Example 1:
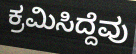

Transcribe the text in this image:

ಕ್ರಮಿಸಿದ್ದೆವು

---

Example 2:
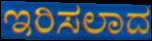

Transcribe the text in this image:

ಇರಿಸಲಾದ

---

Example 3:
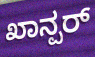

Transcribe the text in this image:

ಖಾನ್ಪರ್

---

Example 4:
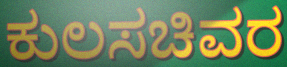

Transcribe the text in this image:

ಕುಲಸಚಿವರ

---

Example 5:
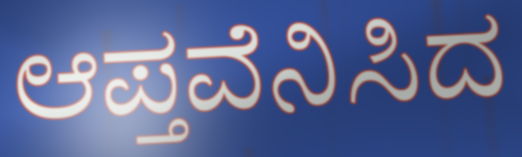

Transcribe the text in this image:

ಆಪ್ತವೆನಿಸಿದ